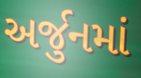
અર્જુનમાં